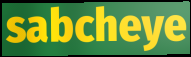
sabcheye